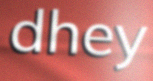
dhey